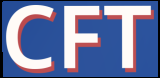
CFT